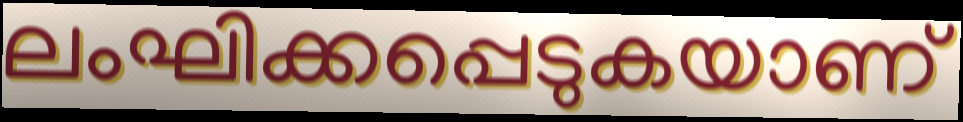
ലംഘിക്കപ്പെടുകയാണ്